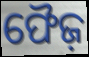
ଫୈଜ଼